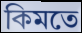
কিমতে